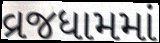
વ્રજધામમાં